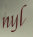
nyl